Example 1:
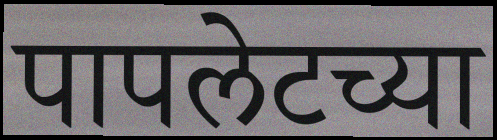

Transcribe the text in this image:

पापलेटच्या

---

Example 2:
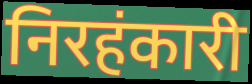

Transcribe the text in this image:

निरहंकारी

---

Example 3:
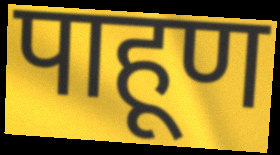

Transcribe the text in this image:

पाहूण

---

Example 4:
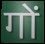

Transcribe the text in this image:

गों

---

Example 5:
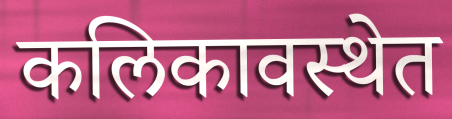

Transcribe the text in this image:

कलिकावस्थेत